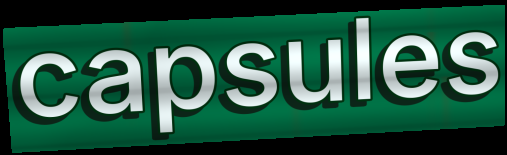
capsules